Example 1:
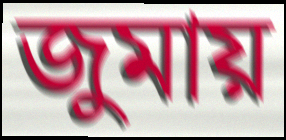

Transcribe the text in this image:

জুমায়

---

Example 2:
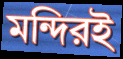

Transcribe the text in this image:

মন্দিরই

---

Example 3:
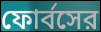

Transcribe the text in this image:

ফোর্বসের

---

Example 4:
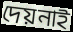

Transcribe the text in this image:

দেয়নাই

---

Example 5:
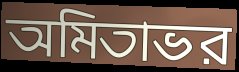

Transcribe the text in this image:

অমিতাভর